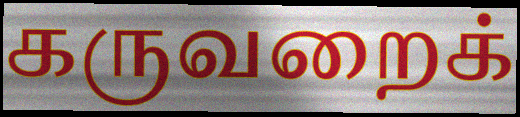
கருவறைக்